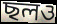
ছলও